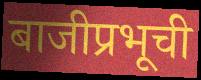
बाजीप्रभूची